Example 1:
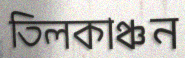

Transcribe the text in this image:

তিলকাঞ্চন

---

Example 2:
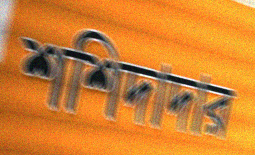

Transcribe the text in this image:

শশিদাদার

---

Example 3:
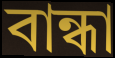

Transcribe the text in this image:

বান্ধা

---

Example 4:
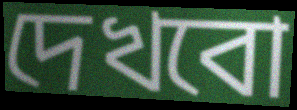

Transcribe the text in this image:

দেখবো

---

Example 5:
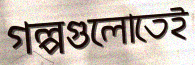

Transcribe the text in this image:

গল্পগুলোতেই